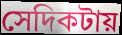
সেদিকটায়